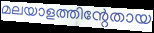
മലയാളത്തിന്റേതായ